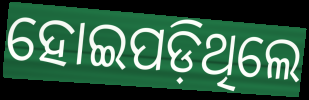
ହୋଇପଡ଼ିଥିଲେ